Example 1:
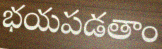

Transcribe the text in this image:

భయపడతాం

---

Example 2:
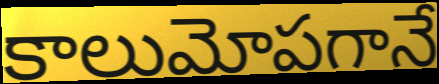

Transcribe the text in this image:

కాలుమోపగానే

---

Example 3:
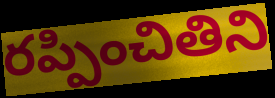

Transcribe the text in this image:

రప్పించితిని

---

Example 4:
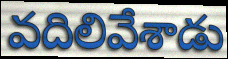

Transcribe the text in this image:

వదిలివేశాడు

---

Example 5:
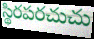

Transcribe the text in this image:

స్థిరపరచుచు